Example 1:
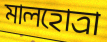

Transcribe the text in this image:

মালহোত্রা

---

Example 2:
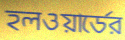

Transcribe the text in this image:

হলওয়ার্ডের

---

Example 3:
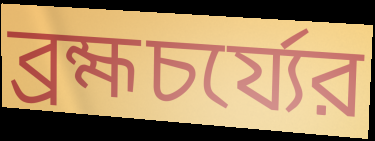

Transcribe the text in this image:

ব্রহ্মচর্য্যের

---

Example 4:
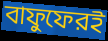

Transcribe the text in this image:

বাফুফেরই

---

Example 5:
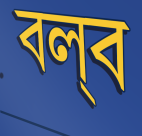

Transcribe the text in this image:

বল্‌ব